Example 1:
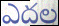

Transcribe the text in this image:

ఎదల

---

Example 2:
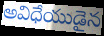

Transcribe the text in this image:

అవిధేయుడైన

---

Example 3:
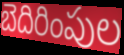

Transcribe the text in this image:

బెదిరింపుల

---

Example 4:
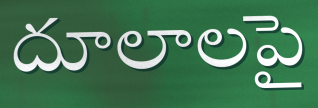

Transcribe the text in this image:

దూలాలపై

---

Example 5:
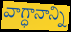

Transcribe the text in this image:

వాగ్ధానాన్ని